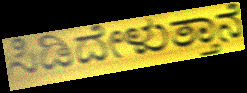
ಸಿಡಿದೇಳುತ್ತಾನೆ